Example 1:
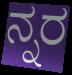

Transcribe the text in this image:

ನ್ನರ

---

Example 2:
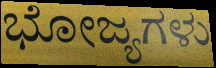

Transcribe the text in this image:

ಭೋಜ್ಯಗಳು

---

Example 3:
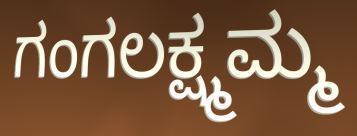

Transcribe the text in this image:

ಗಂಗಲಕ್ಷ್ಮಮ್ಮ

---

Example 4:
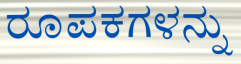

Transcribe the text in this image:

ರೂಪಕಗಳನ್ನು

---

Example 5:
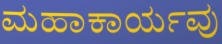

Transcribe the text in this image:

ಮಹಾಕಾರ್ಯವು